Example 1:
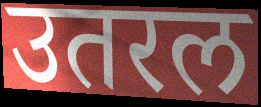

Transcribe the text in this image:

उतरल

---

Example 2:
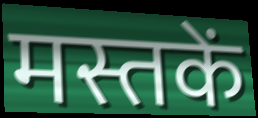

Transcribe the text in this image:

मस्तकें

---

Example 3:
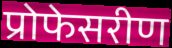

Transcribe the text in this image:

प्रोफेसरीण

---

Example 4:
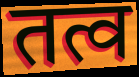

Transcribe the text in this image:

तत्व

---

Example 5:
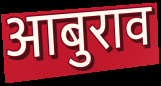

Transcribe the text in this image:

आबुराव